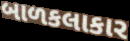
બાળકલાકાર